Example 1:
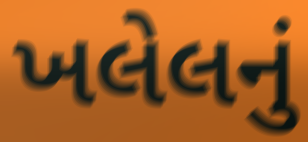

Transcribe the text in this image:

ખલેલનું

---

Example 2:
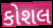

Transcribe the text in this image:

કોશલ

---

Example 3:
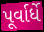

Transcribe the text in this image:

પૂર્વાર્ધે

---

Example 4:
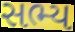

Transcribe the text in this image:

સભ્ય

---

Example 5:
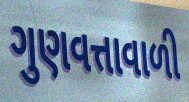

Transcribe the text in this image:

ગુણવત્તાવાળી